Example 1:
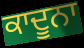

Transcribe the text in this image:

ਕਾਦੂਨਾ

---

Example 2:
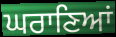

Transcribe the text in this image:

ਘਰਾਣਿਆਂ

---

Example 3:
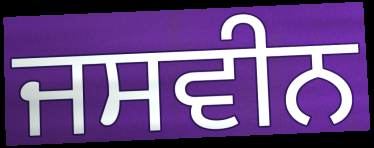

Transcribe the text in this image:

ਜਸਵੀਨ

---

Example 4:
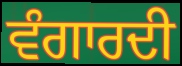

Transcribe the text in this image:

ਵੰਗਾਰਦੀ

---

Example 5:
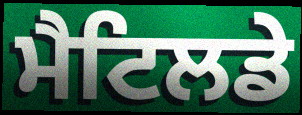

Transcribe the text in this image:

ਮੈਟਿਲਡੇ